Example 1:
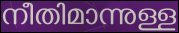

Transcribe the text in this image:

നീതിമാന്നുള്ള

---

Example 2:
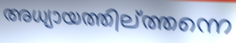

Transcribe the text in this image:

അധ്യായത്തില്ത്തന്നെ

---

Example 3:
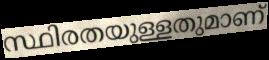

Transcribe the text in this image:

സ്ഥിരതയുള്ളതുമാണ്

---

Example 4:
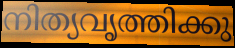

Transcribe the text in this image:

നിത്യവൃത്തിക്കു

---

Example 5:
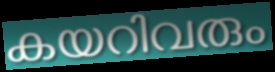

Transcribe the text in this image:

കയറിവരും